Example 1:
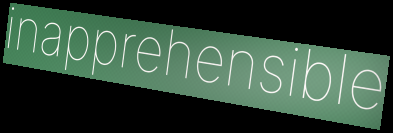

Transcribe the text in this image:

inapprehensible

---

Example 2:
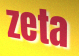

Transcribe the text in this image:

zeta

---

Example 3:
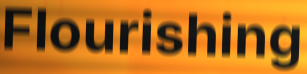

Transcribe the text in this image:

Flourishing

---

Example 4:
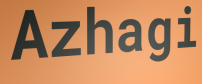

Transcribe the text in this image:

Azhagi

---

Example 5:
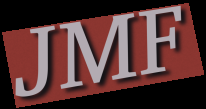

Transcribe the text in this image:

JMF